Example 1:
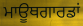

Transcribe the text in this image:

ਮਾਊਥਗਾਰਡਾਂ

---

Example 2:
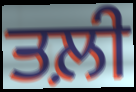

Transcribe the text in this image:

ਤਲ਼ੀ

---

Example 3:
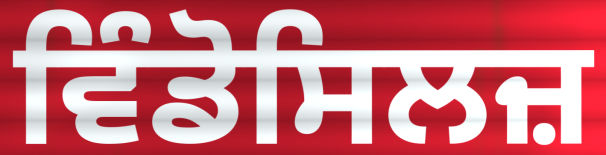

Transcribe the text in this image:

ਵਿੰਡੋਸਿਲਜ਼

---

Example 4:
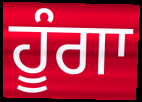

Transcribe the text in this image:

ਹੂੰਗਾ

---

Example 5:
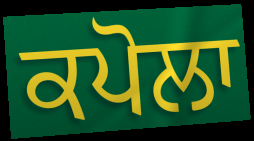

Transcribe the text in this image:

ਕਪੋਲਾ